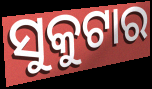
ସୁକୁଟାର